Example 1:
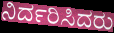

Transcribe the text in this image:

ನಿರ್ದರಿಸಿದರು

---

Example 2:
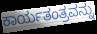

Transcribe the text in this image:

ಕಾರ್ಯತಂತ್ರವನ್ನು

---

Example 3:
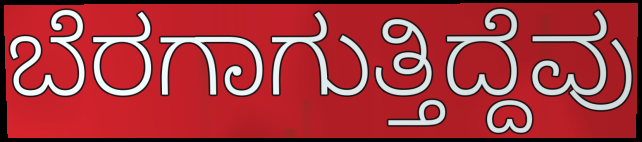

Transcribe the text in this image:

ಬೆರಗಾಗುತ್ತಿದ್ದೆವು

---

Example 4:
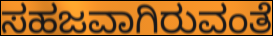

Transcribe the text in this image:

ಸಹಜವಾಗಿರುವಂತೆ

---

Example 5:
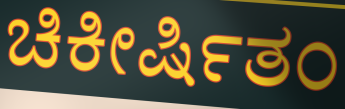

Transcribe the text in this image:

ಚಿಕೀರ್ಷಿತಂ